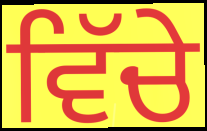
ਵਿੱਚੇ